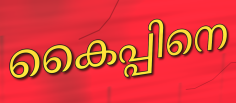
കൈപ്പിനെ